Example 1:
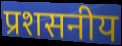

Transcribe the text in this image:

प्रशसनीय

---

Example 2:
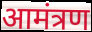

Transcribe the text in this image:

आमंत्रण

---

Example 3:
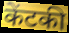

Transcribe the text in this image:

केंटकी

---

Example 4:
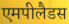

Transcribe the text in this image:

एमपीलैडस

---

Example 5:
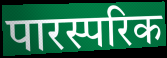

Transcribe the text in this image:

पारस्परिक